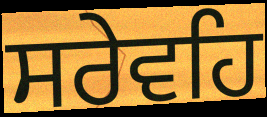
ਸਰੇਵਹਿ